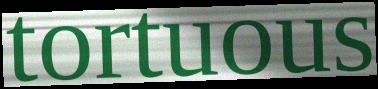
tortuous